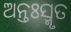
ଅନ୍ତଃସ୍ମୃତ